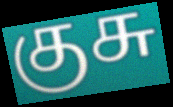
குசு